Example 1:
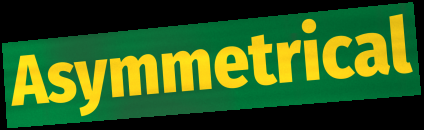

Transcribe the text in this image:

Asymmetrical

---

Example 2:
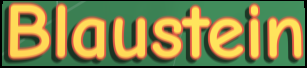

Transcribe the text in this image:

Blaustein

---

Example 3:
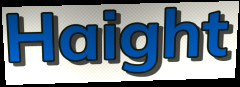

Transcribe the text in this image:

Haight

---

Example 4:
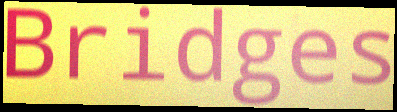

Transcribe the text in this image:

Bridges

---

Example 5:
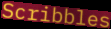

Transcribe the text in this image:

Scribbles